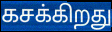
கசக்கிறது